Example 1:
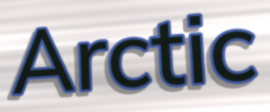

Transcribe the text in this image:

Arctic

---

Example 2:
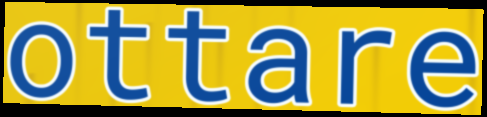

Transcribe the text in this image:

ottare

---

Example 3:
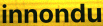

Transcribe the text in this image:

innondu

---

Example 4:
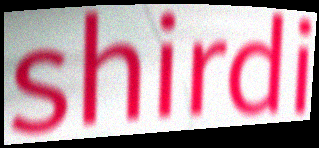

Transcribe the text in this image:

shirdi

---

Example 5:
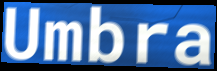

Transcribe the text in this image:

Umbra